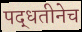
पद्धतीनेच